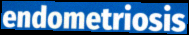
endometriosis